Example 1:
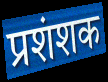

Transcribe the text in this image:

प्रशंशक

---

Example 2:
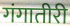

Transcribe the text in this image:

गंगातीरी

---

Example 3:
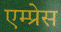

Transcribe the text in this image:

एम्प्रेस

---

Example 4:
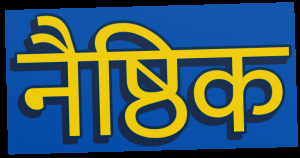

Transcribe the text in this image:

नैष्ठिक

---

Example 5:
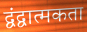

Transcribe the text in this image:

द्वंद्वात्मकता